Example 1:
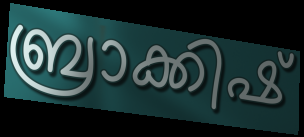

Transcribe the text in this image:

ബ്രാക്കിഷ്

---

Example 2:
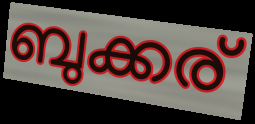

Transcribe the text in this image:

ബുക്കര്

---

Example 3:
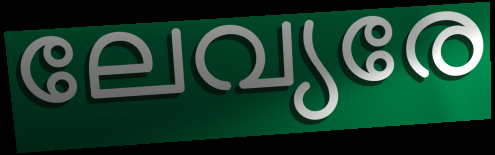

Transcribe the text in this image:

ലേവ്യരേ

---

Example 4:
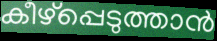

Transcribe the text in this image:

കീഴ്പ്പെടുത്താൻ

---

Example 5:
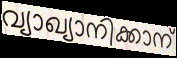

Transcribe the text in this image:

വ്യാഖ്യാനിക്കാന്